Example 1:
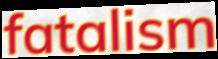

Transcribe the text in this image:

fatalism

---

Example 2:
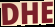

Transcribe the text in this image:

DHE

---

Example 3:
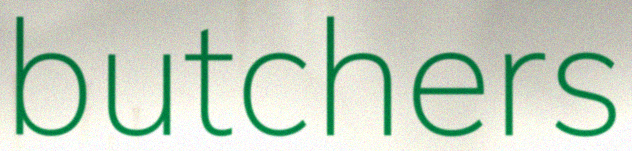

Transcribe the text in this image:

butchers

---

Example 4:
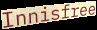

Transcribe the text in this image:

Innisfree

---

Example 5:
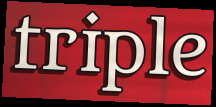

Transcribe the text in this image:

triple